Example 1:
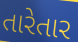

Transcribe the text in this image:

તારેતાર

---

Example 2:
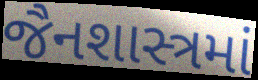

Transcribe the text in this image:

જૈનશાસ્ત્રમાં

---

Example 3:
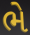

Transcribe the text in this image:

ભે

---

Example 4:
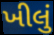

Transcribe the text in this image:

ખીલું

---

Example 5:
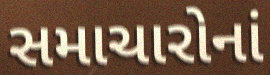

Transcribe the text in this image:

સમાચારોનાં